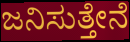
ಜನಿಸುತ್ತೇನೆ